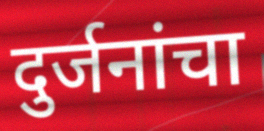
दुर्जनांचा